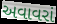
અવાવરાં